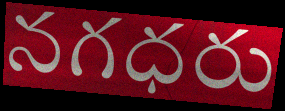
నగధరు